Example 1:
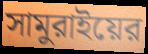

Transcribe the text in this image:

সামুরাইয়ের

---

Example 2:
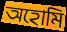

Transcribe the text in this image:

অহোমি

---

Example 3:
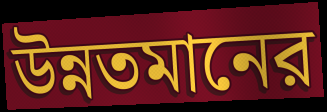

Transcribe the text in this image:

উন্নতমানের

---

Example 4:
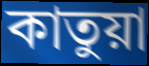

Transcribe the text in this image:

কাতুয়া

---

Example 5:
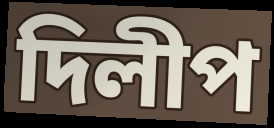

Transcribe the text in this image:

দিলীপ